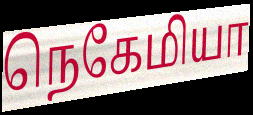
நெகேமியா